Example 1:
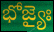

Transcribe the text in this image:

భోజ్యైః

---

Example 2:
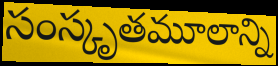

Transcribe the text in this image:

సంస్కృతమూలాన్ని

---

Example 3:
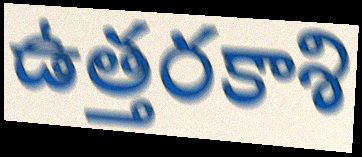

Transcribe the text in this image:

ఉత్తరకాశి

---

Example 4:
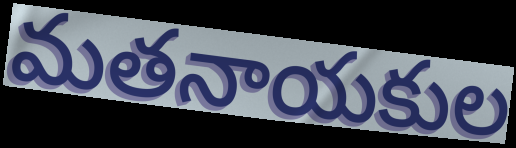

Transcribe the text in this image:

మతనాయకుల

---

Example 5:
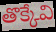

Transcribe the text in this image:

తొక్కేవి